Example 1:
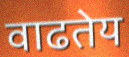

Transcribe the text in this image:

वाढतेय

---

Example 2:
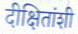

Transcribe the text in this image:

दीक्षितांशी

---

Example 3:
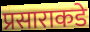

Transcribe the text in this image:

प्रसाराकडे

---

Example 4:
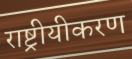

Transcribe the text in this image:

राष्ट्रीयीकरण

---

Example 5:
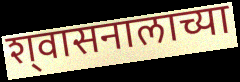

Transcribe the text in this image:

श्वासनालाच्या